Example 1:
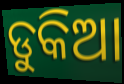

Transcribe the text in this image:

ଡୁକିଆ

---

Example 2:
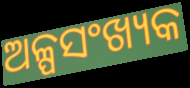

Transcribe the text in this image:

ଅଳ୍ପସଂଖ୍ୟକ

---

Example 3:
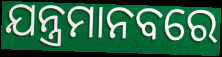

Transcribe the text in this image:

ଯନ୍ତ୍ରମାନବରେ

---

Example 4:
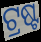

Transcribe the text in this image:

ଟ୍ରଷ୍ଟ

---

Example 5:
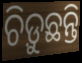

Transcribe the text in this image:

ଚିଡ଼ୁଛନ୍ତି